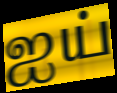
ஐய்